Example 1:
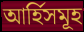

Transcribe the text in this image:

আৰ্হিসমূহ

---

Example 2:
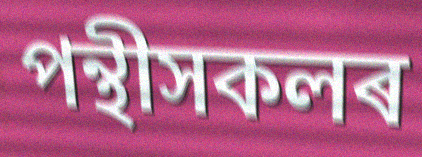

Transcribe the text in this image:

পন্থীসকলৰ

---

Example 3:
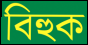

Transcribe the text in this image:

বিহুক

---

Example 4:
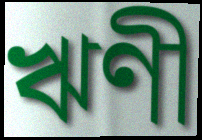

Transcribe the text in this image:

ঋণী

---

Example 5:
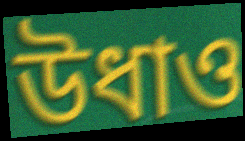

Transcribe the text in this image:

উধাও